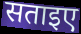
सताइए